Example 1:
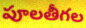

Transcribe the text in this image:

పూలతీగల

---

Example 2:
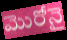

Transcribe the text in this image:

మొరోనై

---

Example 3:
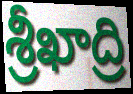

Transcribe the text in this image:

శ్రీఖాద్రి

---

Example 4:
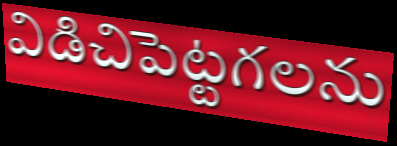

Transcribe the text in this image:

విడిచిపెట్టగలను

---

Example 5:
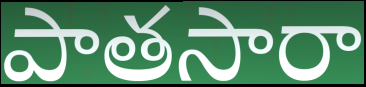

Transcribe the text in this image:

పాతసారా